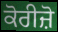
ਕੋਰੀਜ਼ੋ